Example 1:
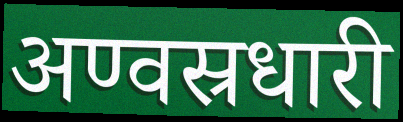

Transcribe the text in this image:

अण्वस्रधारी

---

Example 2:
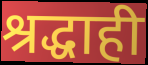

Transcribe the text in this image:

श्रद्धाही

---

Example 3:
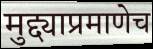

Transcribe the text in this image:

मुद्द्याप्रमाणेच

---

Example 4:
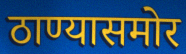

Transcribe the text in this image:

ठाण्यासमोर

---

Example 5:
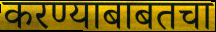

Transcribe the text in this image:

करण्याबाबतचा